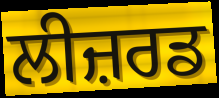
ਲੀਜ਼ਰਡ